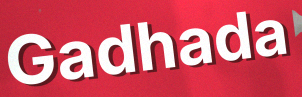
Gadhada